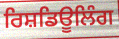
ਰਿਸ਼ਡਿਊਲਿੰਗ